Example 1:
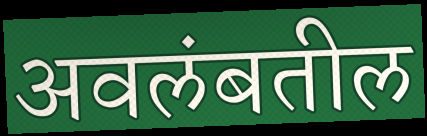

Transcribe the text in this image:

अवलंबतील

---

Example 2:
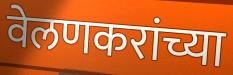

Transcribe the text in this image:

वेलणकरांच्या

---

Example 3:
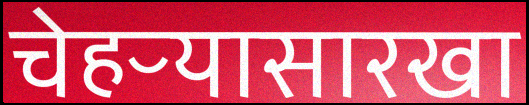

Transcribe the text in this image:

चेहऱ्यासारखा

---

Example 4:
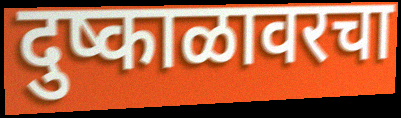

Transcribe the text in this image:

दुष्काळावरचा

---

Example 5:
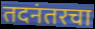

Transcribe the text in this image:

तदनंतरचा